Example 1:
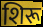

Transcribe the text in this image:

शिरू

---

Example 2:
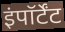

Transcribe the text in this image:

इंपॉर्टेंट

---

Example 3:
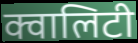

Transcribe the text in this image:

क्वालिटी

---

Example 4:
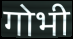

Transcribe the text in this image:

गोभी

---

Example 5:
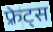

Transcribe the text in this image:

फ़्रेट्स